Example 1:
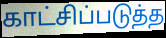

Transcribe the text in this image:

காட்சிப்படுத்த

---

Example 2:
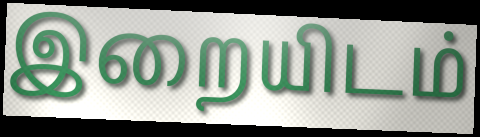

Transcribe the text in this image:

இறையிடம்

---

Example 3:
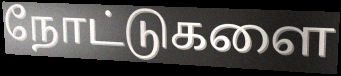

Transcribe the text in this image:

நோட்டுகளை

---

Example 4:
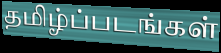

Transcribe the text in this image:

தமிழ்ப்படங்கள்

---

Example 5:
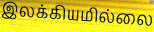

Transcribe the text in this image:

இலக்கியமில்லை